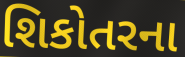
શિકોતરના